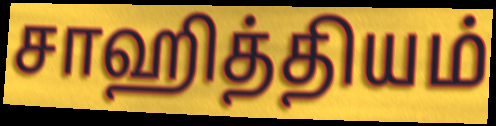
சாஹித்தியம்